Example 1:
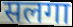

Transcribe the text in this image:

सलगा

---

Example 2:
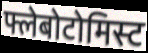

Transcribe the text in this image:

फ्लेबोटोमिस्ट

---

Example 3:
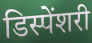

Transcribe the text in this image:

डिस्पेंशरी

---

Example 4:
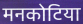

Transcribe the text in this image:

मनकोटिया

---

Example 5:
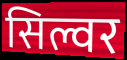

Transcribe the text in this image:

सिल्वर